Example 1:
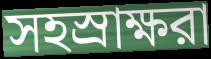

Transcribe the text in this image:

সহস্রাক্ষরা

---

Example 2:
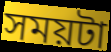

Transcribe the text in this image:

সময়টা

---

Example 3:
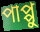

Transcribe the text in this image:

পাপ্পু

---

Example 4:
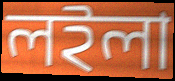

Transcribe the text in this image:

লইলা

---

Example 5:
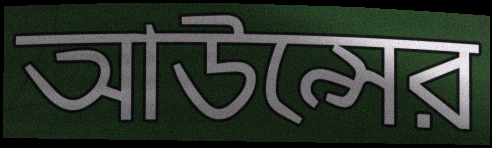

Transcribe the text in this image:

আউন্সের